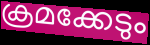
ക്രമക്കേടും